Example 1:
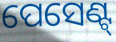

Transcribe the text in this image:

ପେସେଣ୍ଟ୍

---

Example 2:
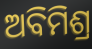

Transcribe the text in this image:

ଅବିମିଶ୍ର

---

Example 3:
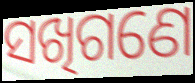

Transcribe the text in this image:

ସଖିଗଣେ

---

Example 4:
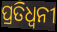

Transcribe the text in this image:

ପ୍ରତିଧ୍ଵନୀ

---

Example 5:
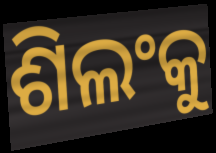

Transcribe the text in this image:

ଶିଲଂକୁ